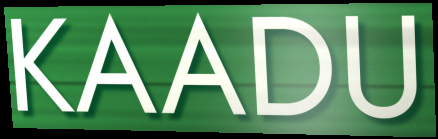
KAADU